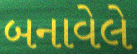
બનાવેલે